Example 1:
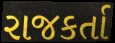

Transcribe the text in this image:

રાજકર્તા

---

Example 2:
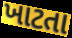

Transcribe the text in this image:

ખાટતા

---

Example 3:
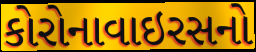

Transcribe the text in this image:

કોરોનાવાઇરસનો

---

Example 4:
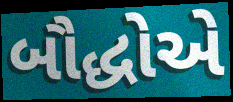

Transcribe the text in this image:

બૌદ્ધોએ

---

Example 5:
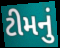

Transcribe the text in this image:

ટીમનું